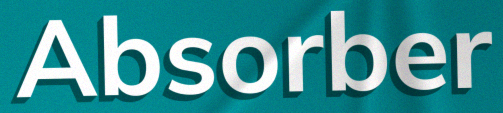
Absorber